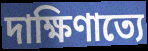
দাক্ষিণাত্যে